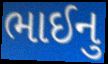
ભાઈનુ